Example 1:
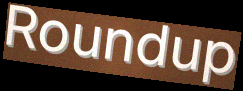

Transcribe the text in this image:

Roundup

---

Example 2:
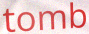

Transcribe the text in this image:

tomb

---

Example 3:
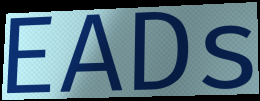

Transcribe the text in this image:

EADs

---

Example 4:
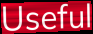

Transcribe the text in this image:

Useful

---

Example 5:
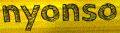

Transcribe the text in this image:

nyonso